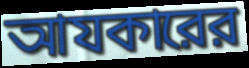
আযকারের